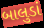
બાલુડાં